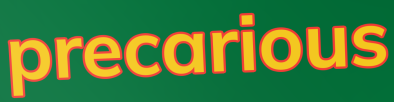
precarious